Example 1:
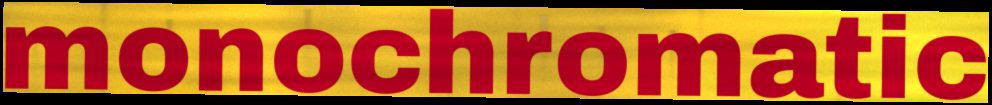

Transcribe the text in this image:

monochromatic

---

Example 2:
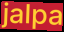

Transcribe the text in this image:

jalpa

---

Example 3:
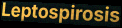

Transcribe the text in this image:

Leptospirosis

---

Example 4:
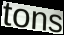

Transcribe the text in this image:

tons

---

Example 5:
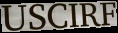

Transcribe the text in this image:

USCIRF